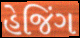
હેજિંગ